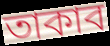
তাকাব